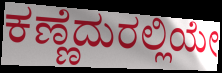
ಕಣ್ಣೆದುರಲ್ಲಿಯೇ